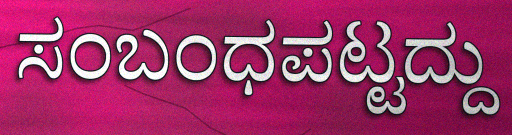
ಸಂಬಂಧಪಟ್ಟದ್ದು